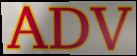
ADV